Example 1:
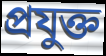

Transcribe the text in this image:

প্রযুক্ত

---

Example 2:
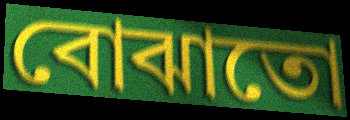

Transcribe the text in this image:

বোঝাতো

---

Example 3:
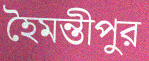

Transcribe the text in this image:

হৈমন্তীপুর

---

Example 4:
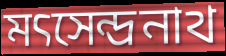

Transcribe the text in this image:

মৎসেন্দ্রনাথ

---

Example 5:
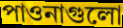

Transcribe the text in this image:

পাওনাগুলো